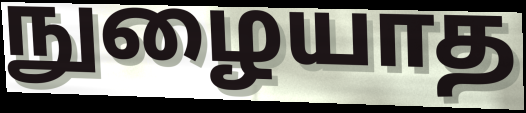
நுழையாத